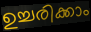
ഉച്ചരിക്കാം